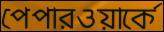
পেপারওয়ার্কে